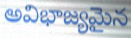
అవిభాజ్యమైన